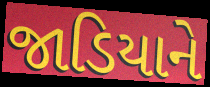
જાડિયાને